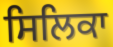
ਸਿਲਿਕਾ